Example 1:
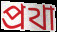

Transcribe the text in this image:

প্রথা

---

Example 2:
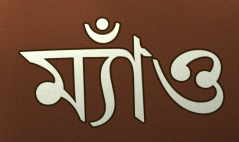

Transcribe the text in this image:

ম্যাঁও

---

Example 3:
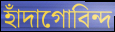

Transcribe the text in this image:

হাঁদাগোবিন্দ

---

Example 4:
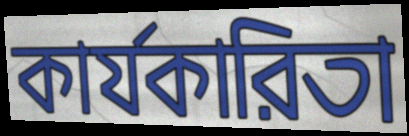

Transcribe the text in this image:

কার্যকারিতা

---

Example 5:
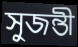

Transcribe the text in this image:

সুজন্তী